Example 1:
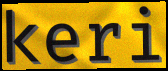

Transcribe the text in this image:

keri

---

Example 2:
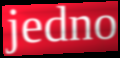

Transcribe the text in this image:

jedno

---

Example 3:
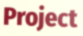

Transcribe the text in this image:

Project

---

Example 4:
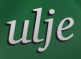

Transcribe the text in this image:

ulje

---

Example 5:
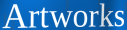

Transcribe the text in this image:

Artworks